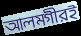
আলমগীরই